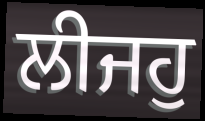
ਲੀਜਹੁ